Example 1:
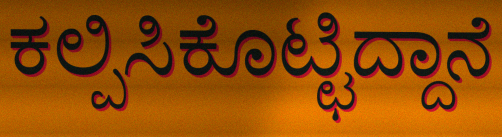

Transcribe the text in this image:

ಕಲ್ಪಿಸಿಕೊಟ್ಟಿದ್ದಾನೆ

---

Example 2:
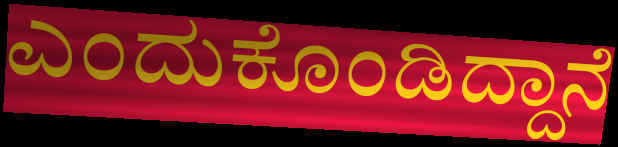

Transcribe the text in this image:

ಎಂದುಕೊಂಡಿದ್ದಾನೆ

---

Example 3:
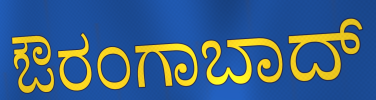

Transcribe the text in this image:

ಔರಂಗಾಬಾದ್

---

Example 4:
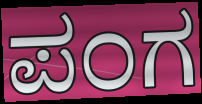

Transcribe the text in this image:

ಪಂಗ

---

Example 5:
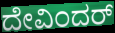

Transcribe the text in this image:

ದೇವಿಂದರ್